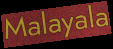
Malayala